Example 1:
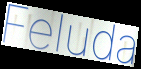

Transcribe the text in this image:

Feluda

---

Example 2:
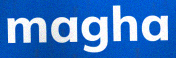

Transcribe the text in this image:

magha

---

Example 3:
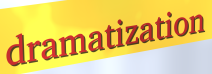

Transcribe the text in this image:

dramatization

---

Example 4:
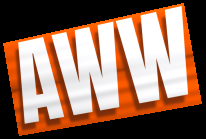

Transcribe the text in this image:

AWW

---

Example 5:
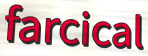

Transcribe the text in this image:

farcical